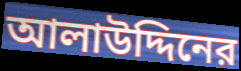
আলাউদ্দিনের